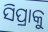
ସିପ୍ରାକୁ